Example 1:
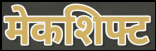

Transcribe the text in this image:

मेकशिफ्ट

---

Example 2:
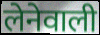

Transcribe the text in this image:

लेनेवाली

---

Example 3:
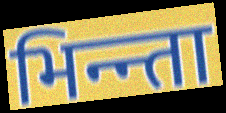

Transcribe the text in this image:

भिन्न्ता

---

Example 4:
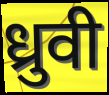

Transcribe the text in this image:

ध्रुवी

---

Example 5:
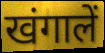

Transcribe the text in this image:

खंगालें